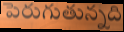
పెరుగుతున్నది